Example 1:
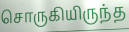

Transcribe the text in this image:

சொருகியிருந்த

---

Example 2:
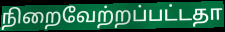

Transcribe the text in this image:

நிறைவேற்றப்பட்டதா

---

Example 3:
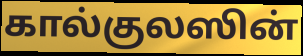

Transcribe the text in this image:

கால்குலஸின்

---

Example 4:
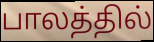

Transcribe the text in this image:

பாலத்தில்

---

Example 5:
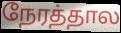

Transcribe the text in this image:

நேரத்தால